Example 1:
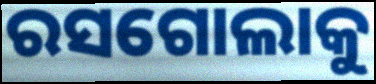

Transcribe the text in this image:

ରସଗୋଲାକୁ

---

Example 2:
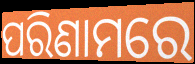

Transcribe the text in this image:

ପରିଣାମରେ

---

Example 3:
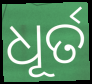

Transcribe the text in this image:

ଧୂର୍ତ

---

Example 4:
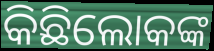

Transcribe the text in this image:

କିଛିଲୋକଙ୍କ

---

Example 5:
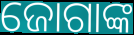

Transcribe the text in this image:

ଜୋଗାଙ୍କ